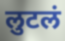
लुटलं